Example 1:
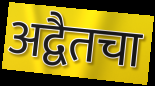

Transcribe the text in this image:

अद्वैतचा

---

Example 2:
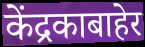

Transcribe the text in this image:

केंद्रकाबाहेर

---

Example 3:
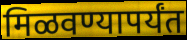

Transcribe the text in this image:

मिळवण्यापर्यंत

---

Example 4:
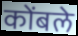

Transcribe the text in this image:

कोंबले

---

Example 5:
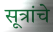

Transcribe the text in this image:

सूत्रांचे